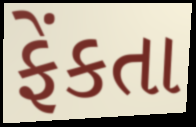
ફેંકતા